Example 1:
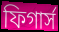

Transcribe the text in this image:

ফিগার্স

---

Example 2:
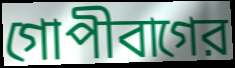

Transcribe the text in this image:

গোপীবাগের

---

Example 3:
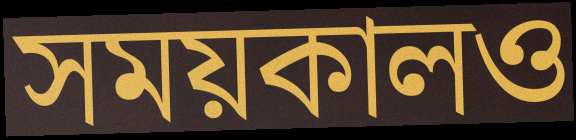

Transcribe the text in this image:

সময়কালও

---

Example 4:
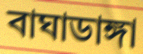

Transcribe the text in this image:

বাঘাডাঙ্গা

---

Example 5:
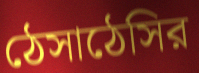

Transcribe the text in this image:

ঠেসাঠেসির